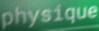
physique